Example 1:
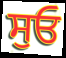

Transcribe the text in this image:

ਸੁਓ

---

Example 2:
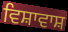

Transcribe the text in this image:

ਵਿਸ਼ਾਵਾਸ਼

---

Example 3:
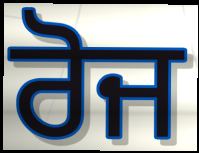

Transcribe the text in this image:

ਰੋਜ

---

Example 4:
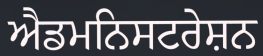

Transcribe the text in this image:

ਐਡਮਨਿਸਟਰੇਸ਼ਨ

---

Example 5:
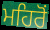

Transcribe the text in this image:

ਮਹਿਰੋਂ